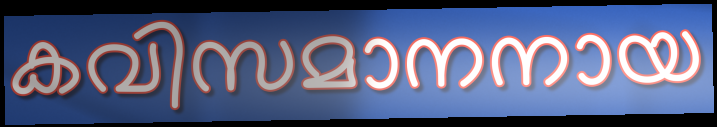
കവിസമാനനായ